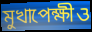
মুখাপেক্ষীও